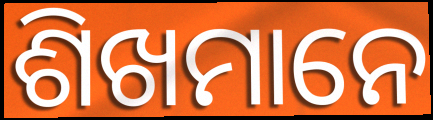
ଶିଖମାନେ